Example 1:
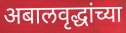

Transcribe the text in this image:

अबालवृद्धांच्या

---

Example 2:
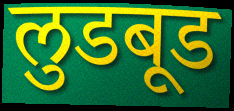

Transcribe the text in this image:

लुडबूड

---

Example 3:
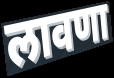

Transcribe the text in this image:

लावणा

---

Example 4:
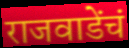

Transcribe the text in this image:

राजवाडेंचं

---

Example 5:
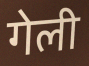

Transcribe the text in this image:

गेली